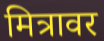
मित्रावर